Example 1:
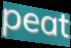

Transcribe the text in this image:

peat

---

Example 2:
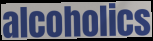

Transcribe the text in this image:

alcoholics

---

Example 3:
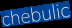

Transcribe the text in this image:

chebulic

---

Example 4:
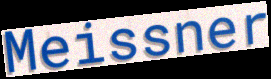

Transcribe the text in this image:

Meissner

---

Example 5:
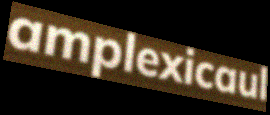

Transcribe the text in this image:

amplexicaul